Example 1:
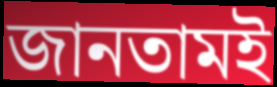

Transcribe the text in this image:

জানতামই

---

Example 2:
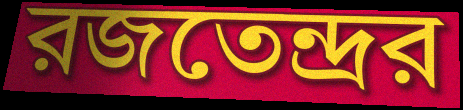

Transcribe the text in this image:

রজতেন্দ্রর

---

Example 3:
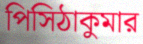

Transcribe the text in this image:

পিসিঠাকুমার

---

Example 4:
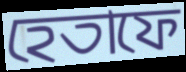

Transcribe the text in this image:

হেতাফে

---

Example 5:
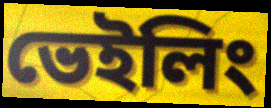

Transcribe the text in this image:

ভেইলিং